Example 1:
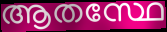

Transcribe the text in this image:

ആതസ്ഥേ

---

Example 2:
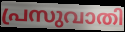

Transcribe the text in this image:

പ്രസുവാതി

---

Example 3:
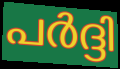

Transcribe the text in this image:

പർദ്ദി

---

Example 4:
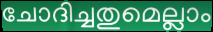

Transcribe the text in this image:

ചോദിച്ചതുമെല്ലാം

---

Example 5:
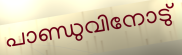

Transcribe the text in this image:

പാണ്ഡുവിനോടു്